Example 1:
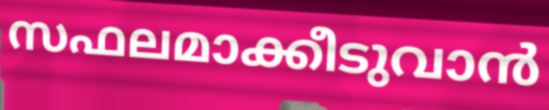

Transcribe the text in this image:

സഫലമാക്കീടുവാൻ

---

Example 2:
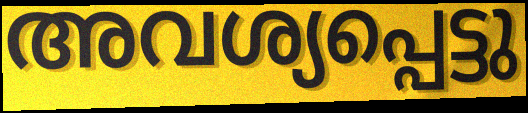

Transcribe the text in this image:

അവശ്യപ്പെട്ടു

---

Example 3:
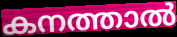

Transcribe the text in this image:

കനത്താൽ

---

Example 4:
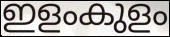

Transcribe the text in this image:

ഇളംകുളം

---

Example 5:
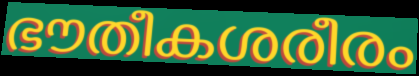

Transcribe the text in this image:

ഭൗതീകശരീരം